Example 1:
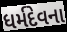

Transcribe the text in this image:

ધર્મદેવના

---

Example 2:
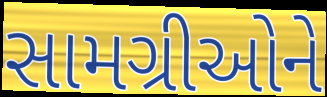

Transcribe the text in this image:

સામગ્રીઓને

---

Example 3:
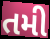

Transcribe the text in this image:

તમી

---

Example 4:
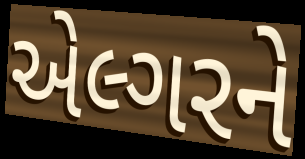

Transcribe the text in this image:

એલ્ગરને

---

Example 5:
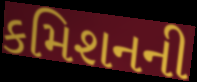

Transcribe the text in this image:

કમિશનની